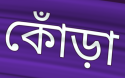
কোঁড়া